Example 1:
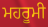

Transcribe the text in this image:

ਮਹਰੂਮੀ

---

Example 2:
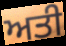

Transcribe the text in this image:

ਅਤੀ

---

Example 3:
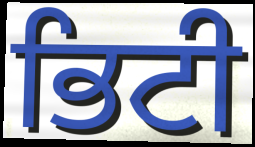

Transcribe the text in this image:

ਭਿਟੀ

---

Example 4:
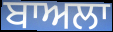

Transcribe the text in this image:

ਬਾਅਲਾ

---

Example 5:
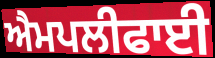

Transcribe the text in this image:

ਐਮਪਲੀਫਾਈ